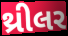
થ્રીલર